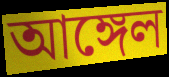
আঙ্গেল